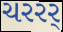
ચરરર્